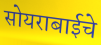
सोयराबाईचे